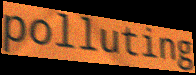
polluting